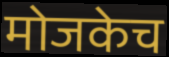
मोजकेच